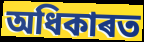
অধিকাৰত